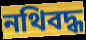
নথিবদ্ধ